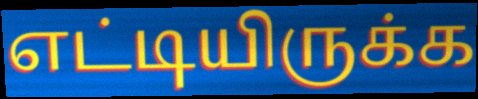
எட்டியிருக்க